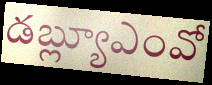
డబ్ల్యూఎంవో